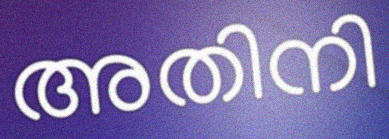
അതിനി